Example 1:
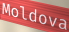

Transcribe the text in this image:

Moldova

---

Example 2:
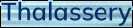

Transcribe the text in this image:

Thalassery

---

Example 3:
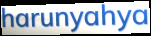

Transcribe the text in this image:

harunyahya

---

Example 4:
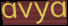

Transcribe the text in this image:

avya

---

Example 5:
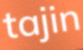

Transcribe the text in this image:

tajin